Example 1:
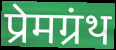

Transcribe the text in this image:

प्रेमग्रंथ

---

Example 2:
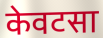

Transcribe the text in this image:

केवटसा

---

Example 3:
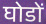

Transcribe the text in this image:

घोडों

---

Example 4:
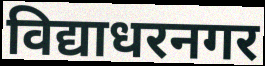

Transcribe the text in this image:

विद्याधरनगर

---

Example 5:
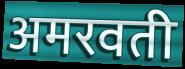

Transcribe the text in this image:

अमरवती